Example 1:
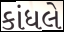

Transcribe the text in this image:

કાંધલે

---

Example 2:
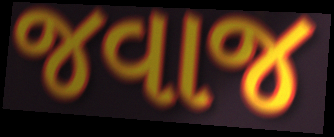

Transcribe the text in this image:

જવાજ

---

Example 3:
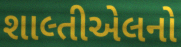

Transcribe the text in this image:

શાલ્તીએલનો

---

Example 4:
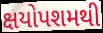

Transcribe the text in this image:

ક્ષયોપશમથી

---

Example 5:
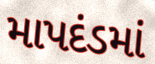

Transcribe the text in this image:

માપદંડમાં